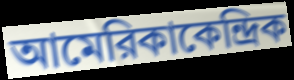
আমেরিকাকেন্দ্রিক